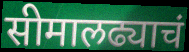
सीमालढ्याचं